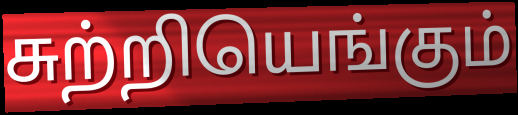
சுற்றியெங்கும்